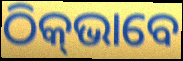
ଠିକ୍‌ଭାବେ